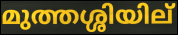
മുത്തശ്ശിയില്